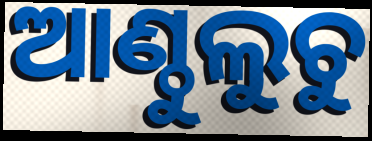
ଆଣ୍ଠୁଲୁଚୁ